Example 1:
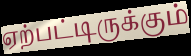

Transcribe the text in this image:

ஏற்பட்டிருக்கும்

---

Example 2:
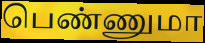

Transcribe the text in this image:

பெண்ணுமா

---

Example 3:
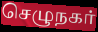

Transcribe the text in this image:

செழுநகர்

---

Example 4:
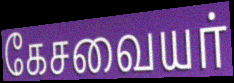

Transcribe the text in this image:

கேசவையர்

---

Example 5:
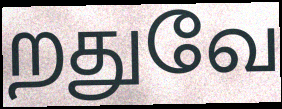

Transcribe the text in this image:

றதுவே